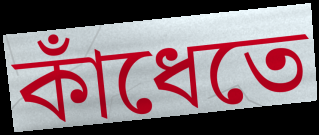
কাঁধেতে